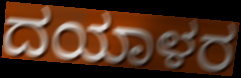
ದಯಾಳರ